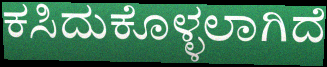
ಕಸಿದುಕೊಳ್ಳಲಾಗಿದೆ